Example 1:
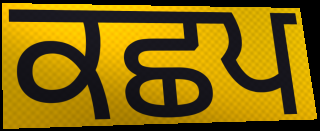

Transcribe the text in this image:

ਕਛਪ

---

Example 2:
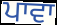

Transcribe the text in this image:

ਪਾਵਾ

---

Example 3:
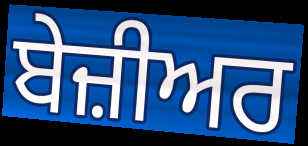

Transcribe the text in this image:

ਬੇਜ਼ੀਅਰ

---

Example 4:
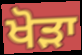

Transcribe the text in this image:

ਖੋੜਾ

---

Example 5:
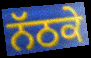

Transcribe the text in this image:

ਨੱਠਕੇ